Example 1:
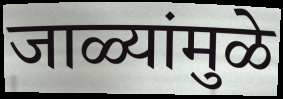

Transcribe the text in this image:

जाळ्यांमुळे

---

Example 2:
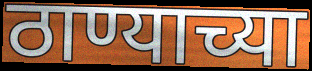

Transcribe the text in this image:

ठाण्याच्या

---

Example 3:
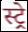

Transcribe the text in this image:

स्ट्रे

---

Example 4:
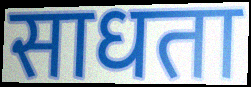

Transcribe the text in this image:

साधता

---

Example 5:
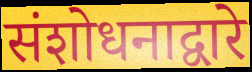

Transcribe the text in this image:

संशोधनाद्वारे